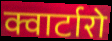
क्वार्टारो